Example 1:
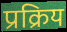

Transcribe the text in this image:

प्रक्रिय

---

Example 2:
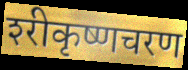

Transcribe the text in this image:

श्रीकृष्णचरण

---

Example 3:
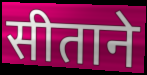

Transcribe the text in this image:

सीताने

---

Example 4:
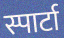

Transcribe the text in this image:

स्पार्टा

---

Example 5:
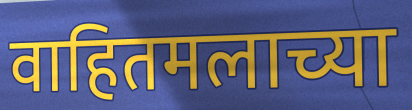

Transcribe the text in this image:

वाहितमलाच्या